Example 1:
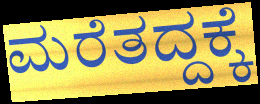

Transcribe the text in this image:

ಮರೆತದ್ದಕ್ಕೆ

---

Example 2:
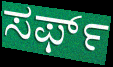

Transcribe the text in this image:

ಸರ್ಫ್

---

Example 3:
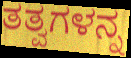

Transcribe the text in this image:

ತತ್ವಗಳನ್ನ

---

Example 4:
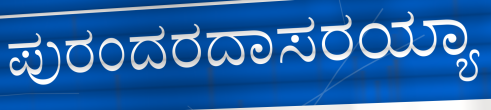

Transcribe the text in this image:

ಪುರಂದರದಾಸರಯ್ಯಾ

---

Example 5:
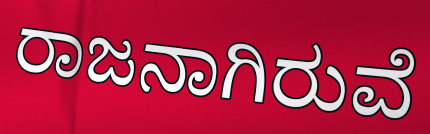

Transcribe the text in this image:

ರಾಜನಾಗಿರುವೆ